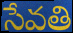
సేవతి